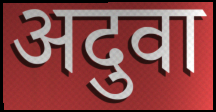
अदुवा